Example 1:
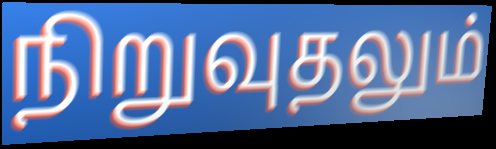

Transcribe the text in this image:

நிறுவுதலும்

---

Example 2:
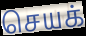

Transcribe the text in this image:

செயக்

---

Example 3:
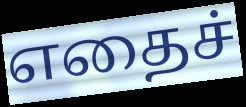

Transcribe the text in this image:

எதைச்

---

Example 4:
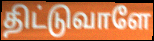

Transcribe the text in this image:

திட்டுவாளே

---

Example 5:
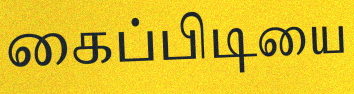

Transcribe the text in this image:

கைப்பிடியை